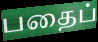
பதைப்